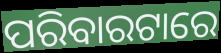
ପରିବାରଟାରେ